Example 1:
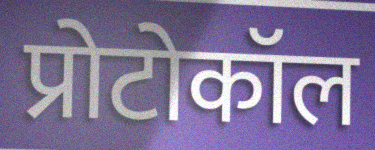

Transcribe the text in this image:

प्रोटोकॉल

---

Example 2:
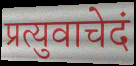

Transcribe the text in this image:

प्रत्युवाचेदं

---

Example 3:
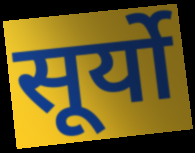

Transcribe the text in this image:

सूर्यो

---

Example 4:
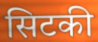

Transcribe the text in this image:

सिटकी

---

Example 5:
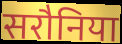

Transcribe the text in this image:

सरौनिया